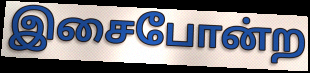
இசைபோன்ற